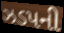
ઝડપની